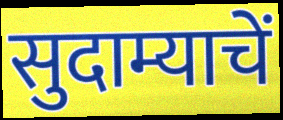
सुदाम्याचें